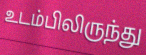
உடம்பிலிருந்து